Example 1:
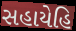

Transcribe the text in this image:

સહાયેહિ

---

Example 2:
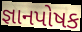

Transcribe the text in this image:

જ્ઞાનપોષક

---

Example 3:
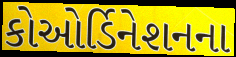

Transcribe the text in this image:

કોઓર્ડિનેશનના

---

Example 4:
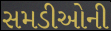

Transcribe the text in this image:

સમડીઓની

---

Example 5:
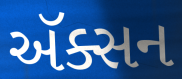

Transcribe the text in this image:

ઍક્સન